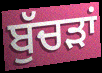
ਬੁੱਚੜਾਂ